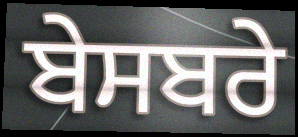
ਬੇਸਬਰੇ